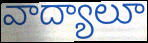
వాద్యాలూ